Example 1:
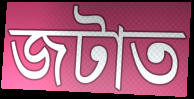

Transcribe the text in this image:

জটাত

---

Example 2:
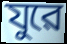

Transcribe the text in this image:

যুৱে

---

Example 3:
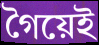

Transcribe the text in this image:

গৈয়েই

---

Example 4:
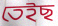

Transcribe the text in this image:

তেইছ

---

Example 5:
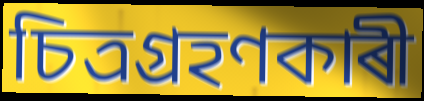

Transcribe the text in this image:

চিত্ৰগ্ৰহণকাৰী